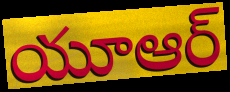
యూఆర్